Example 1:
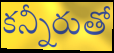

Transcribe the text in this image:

కన్నీరుతో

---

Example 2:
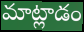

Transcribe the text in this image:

మాట్లాడం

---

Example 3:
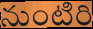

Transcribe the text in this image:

నుంటిరి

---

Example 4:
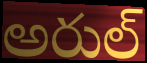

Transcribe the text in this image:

అరుల్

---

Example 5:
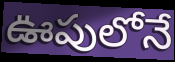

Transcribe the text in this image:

ఊపులోనే